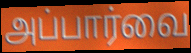
அப்பார்வை